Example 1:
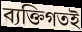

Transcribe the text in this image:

ব্যক্তিগতই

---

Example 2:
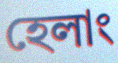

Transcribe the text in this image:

হেলাং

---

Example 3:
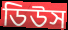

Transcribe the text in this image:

ডিউস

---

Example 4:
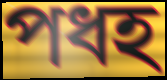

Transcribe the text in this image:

পধহ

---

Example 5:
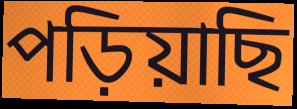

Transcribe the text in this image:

পড়িয়াছি